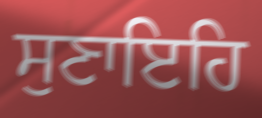
ਸੁਣਾਇਹਿ